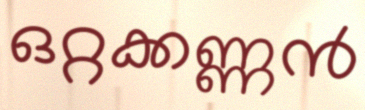
ഒറ്റക്കണ്ണൻ